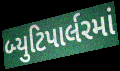
બ્યુટિપાર્લરમાં